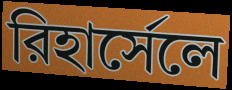
রিহার্সেলে